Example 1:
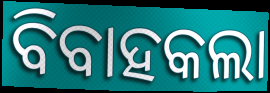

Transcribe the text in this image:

ବିବାହକଲା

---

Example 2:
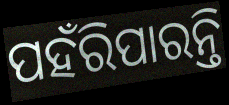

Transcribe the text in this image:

ପହଁରିପାରନ୍ତି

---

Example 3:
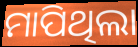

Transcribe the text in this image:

ମାପିଥିଲା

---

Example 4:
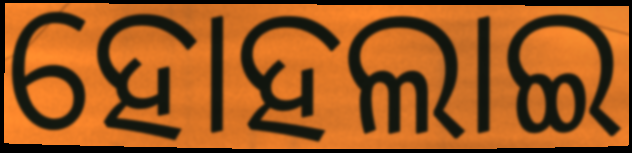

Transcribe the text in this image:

ହୋହଲାଇ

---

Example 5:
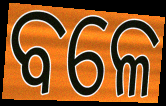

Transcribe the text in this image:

ବଳେ